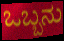
ಒಬ್ಬನು